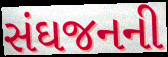
સંઘજનની